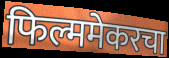
फिल्ममेकरचा